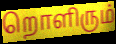
றொளிரும்